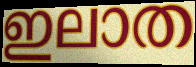
ഇലാത